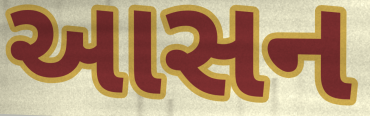
આસન